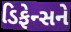
ડિફેન્સને